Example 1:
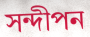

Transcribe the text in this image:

সন্দীপন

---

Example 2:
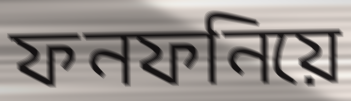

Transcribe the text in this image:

ফনফনিয়ে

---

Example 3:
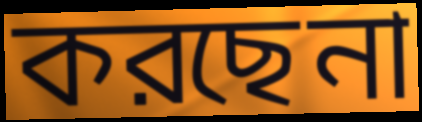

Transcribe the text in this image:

করছেনা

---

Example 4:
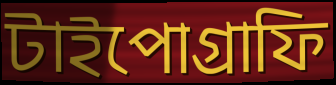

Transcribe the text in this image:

টাইপোগ্রাফি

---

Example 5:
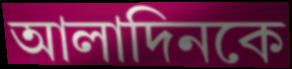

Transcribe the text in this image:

আলাদিনকে